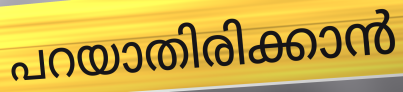
പറയാതിരിക്കാൻ